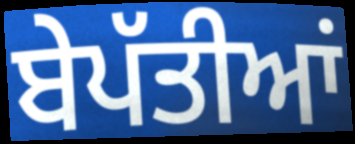
ਬੇਪੱਤੀਆਂ